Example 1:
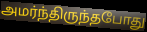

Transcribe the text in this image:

அமர்ந்திருந்தபோது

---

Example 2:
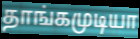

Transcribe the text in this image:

தாங்கமுடியா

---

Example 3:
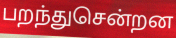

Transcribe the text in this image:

பறந்துசென்றன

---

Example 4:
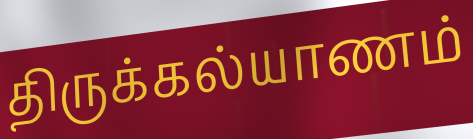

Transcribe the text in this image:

திருக்கல்யாணம்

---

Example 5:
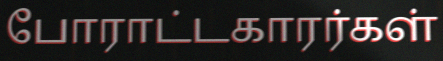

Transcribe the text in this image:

போராட்டகாரர்கள்